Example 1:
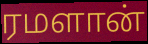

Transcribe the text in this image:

ரமளான்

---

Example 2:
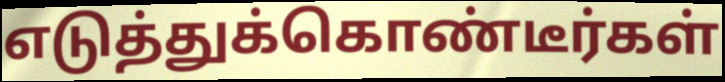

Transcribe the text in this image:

எடுத்துக்கொண்டீர்கள்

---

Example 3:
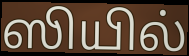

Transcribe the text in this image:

ஸியில்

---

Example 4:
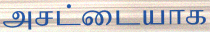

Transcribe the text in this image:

அசட்டையாக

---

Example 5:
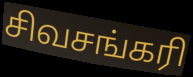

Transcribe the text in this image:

சிவசங்கரி